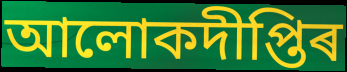
আলোকদীপ্তিৰ